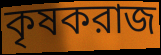
কৃষকরাজ